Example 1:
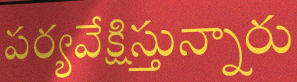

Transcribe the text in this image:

పర్యవేక్షిస్తున్నారు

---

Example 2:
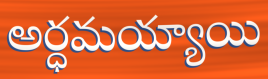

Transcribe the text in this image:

అర్ధమయ్యాయి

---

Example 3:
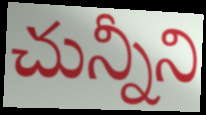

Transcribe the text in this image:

చున్నీని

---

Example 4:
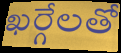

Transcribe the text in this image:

ఖర్గేలతో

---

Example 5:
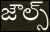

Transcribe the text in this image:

జౌల్స్